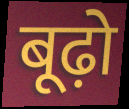
बूढ़ो